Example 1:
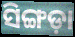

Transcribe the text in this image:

ସିଙ୍ଗଡ଼ା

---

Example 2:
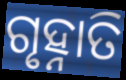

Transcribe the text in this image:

ଗୃହ୍ନାତି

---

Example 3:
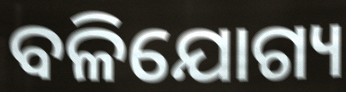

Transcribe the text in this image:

ବଳିଯୋଗ୍ୟ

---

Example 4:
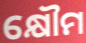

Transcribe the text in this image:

କ୍ଷୌମ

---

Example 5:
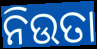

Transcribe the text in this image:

ନିଉତା